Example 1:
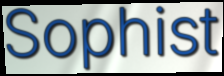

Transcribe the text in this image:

Sophist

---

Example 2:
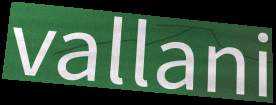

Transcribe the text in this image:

vallani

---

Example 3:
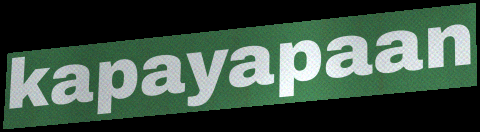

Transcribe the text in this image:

kapayapaan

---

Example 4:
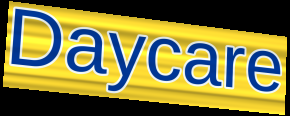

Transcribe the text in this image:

Daycare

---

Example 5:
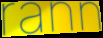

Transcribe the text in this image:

rann